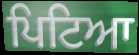
ਪਿਟਿਆ